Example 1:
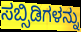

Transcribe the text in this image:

ಸಬ್ಸಿಡಿಗಳನ್ನು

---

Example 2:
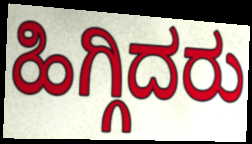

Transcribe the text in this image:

ಹಿಗ್ಗಿದರು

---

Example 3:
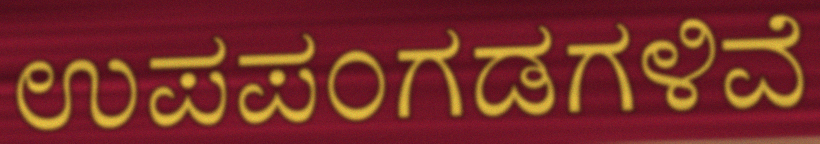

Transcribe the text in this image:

ಉಪಪಂಗಡಗಳಿವೆ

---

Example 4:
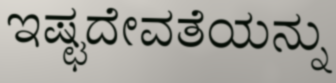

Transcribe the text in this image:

ಇಷ್ಟದೇವತೆಯನ್ನು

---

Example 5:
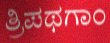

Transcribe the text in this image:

ತ್ರಿಪಥಗಾಂ